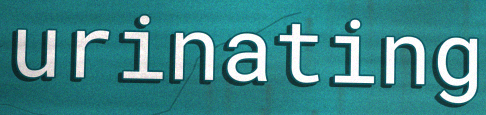
urinating